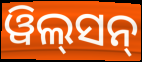
ୱିଲ୍‌ସନ୍